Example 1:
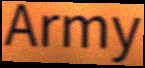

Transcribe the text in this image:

Army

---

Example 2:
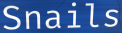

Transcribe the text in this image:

Snails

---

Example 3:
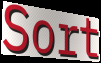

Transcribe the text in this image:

Sort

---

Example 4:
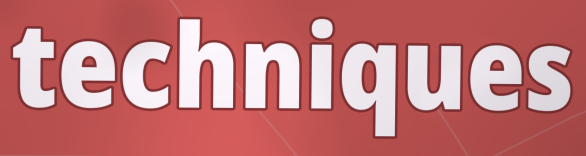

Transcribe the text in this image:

techniques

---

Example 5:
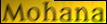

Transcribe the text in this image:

Mohana